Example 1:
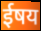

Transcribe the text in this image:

ईषय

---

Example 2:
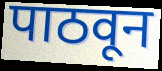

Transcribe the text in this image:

पाठवून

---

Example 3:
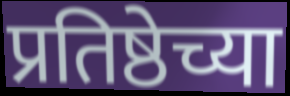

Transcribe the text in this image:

प्रतिष्ठेच्या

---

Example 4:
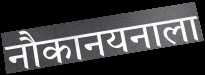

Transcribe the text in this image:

नौकानयनाला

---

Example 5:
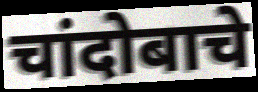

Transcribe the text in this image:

चांदोबाचे